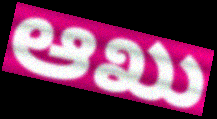
ಆಖು